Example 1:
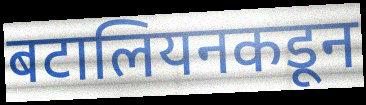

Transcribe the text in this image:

बटालियनकडून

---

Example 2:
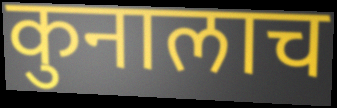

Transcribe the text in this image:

कुनालाच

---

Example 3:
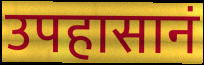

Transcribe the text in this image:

उपहासानं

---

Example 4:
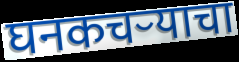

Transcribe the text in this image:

घनकचऱ्याचा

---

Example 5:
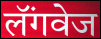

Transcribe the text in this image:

लॅंगवेज